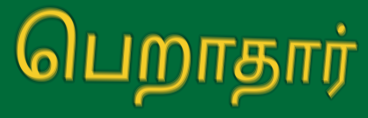
பெறாதார்